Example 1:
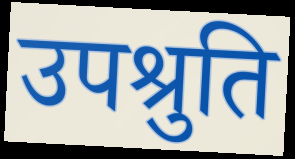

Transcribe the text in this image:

उपश्रुति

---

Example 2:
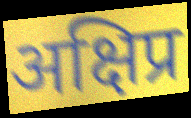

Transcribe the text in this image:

अक्षिप्र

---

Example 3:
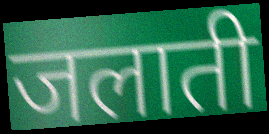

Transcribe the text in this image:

जलाती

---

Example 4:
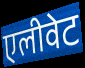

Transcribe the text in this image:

एलीवेट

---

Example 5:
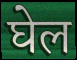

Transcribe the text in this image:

घेल